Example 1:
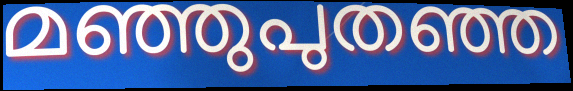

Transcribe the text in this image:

മഞ്ഞുപുതഞ്ഞ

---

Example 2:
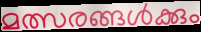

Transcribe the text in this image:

മത്സരങ്ങൾക്കും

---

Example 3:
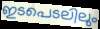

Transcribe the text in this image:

ഇടപെടലിലും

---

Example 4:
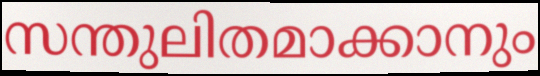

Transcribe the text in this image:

സന്തുലിതമാക്കാനും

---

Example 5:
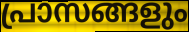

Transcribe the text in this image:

പ്രാസങ്ങളും